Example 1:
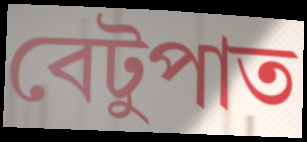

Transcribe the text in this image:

বেটুপাত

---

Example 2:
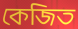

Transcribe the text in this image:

কেজিত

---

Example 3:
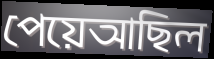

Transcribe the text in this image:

পেয়েআছিল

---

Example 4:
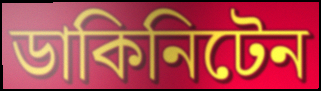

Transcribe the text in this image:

ডাকিনিটেন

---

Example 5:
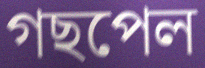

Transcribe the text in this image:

গছপেল